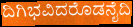
ದಿಗಿಭವಿದರೊಡನೈದಿ